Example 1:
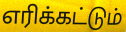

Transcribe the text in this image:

எரிக்கட்டும்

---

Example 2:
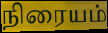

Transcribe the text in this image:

நிரையம்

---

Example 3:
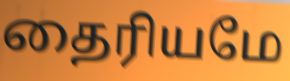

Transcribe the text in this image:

தைரியமே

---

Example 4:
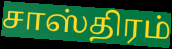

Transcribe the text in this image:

சாஸ்திரம்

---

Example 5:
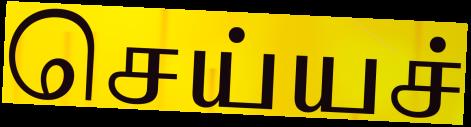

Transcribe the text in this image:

செய்யச்